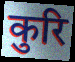
कुरि